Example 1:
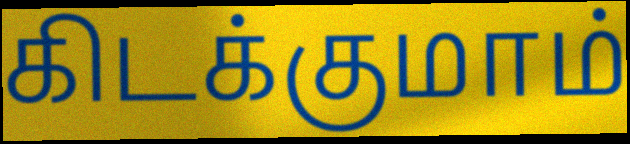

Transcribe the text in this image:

கிடக்குமாம்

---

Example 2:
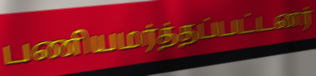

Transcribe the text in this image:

பணியமர்த்தப்பட்டனர்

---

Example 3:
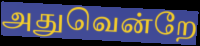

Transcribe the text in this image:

அதுவென்றே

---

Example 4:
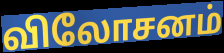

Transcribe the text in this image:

விலோசனம்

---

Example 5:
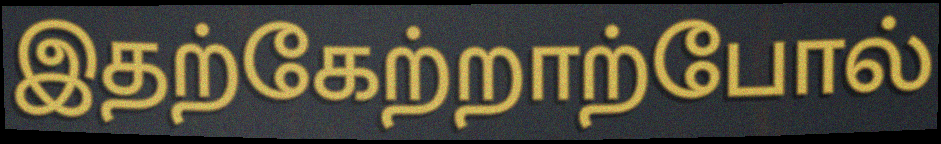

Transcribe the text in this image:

இதற்கேற்றாற்போல்